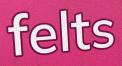
felts